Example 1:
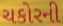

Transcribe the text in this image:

ચકોરની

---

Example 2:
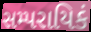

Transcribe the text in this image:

સમ્પરાયિકં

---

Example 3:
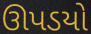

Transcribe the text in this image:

ઊપડયો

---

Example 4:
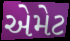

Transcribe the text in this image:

એમેટ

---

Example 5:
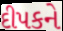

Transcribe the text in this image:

દીપકને